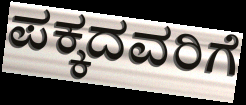
ಪಕ್ಕದವರಿಗೆ